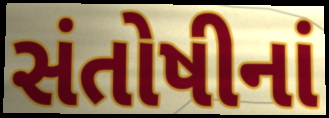
સંતોષીનાં